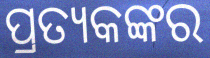
ପ୍ରତ୍ୟକଙ୍କର